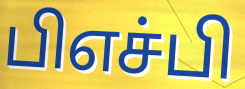
பிஎச்பி